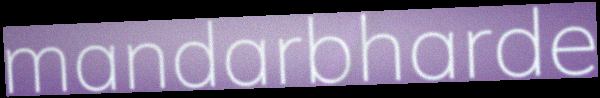
mandarbharde